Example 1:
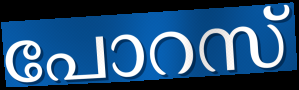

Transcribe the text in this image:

പോറസ്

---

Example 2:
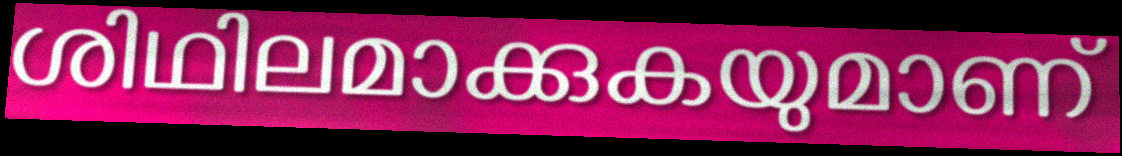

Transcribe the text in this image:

ശിഥിലമാക്കുകയുമാണ്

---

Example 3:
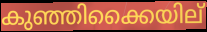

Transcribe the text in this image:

കുഞ്ഞിക്കൈയില്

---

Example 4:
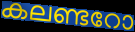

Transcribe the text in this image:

കലണ്ടറോ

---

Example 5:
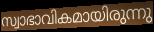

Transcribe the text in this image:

സ്വാഭാവികമായിരുന്നു